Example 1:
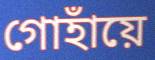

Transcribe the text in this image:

গোহাঁয়ে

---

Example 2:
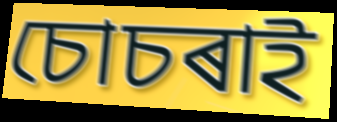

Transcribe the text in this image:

চোচৰাই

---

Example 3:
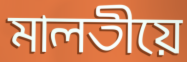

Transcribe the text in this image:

মালতীয়ে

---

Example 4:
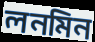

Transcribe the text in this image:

লনমিন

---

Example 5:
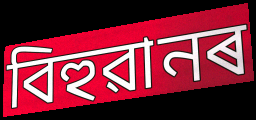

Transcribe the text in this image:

বিহুৱানৰ